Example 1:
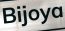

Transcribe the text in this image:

Bijoya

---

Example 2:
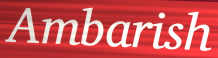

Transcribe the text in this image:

Ambarish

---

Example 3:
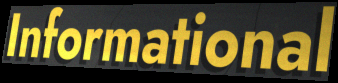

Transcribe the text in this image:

Informational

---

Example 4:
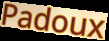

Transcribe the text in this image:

Padoux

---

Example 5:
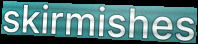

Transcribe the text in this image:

skirmishes